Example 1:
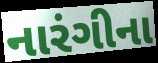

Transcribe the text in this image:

નારંગીના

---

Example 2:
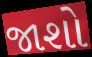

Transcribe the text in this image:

જાશો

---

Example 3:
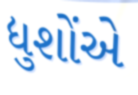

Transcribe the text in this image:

દ્યુશોંએ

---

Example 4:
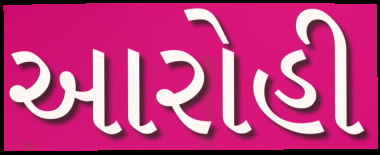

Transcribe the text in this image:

આરોહી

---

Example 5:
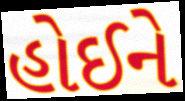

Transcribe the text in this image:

હોઈને